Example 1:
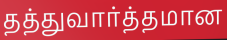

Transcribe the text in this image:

தத்துவார்த்தமான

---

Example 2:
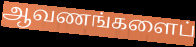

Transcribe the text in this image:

ஆவணங்களைப்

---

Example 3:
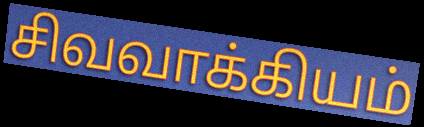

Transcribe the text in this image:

சிவவாக்கியம்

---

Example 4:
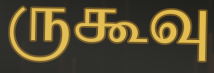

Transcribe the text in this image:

ருகூவு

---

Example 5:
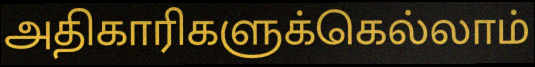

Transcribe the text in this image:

அதிகாரிகளுக்கெல்லாம்